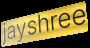
jayshree